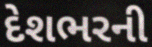
દેશભરની